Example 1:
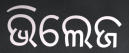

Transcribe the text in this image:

ଭିଲେଜ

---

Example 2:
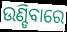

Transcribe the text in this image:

ଉଣ୍ଡିବାରେ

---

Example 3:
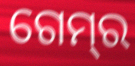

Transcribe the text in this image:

ଗେମ୍‌ର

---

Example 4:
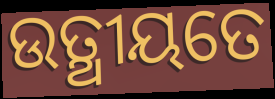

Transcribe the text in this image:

ଉତ୍ଥୀୟତେ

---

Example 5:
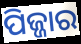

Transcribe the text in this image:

ପିଜ୍ଜାର